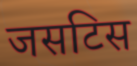
जसटिस